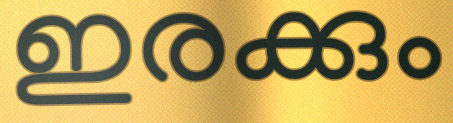
ഇരക്കും